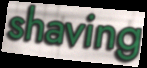
shaving